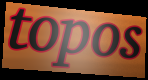
topos